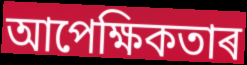
আপেক্ষিকতাৰ